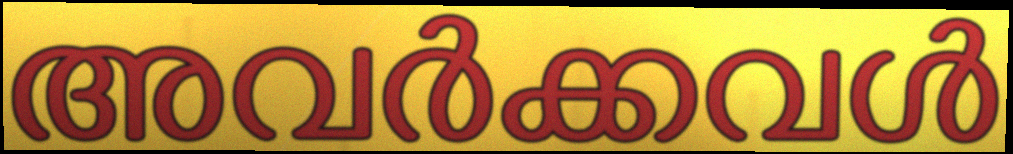
അവർക്കവൾ